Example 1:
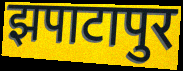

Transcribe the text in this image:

झपाटापुर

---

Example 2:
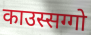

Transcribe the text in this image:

काउस्सग्गो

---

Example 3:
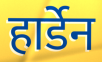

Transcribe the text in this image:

हार्डेन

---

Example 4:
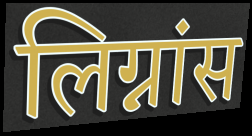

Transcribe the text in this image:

लिग्नांस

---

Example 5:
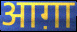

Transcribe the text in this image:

आग़ा